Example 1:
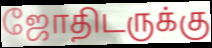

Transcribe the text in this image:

ஜோதிடருக்கு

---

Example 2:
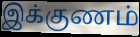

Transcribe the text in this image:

இக்குணம்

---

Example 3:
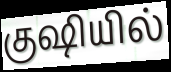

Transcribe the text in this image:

குஷியில்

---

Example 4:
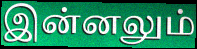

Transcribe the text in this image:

இன்னலும்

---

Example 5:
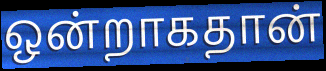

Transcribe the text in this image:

ஒன்றாகதான்